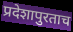
प्रदेशापुरताच